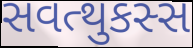
સવત્થુકસ્સ